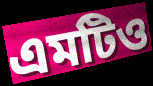
এমটিও